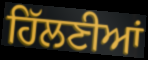
ਹਿੱਲਣੀਆਂ